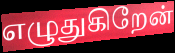
எழுதுகிறேன்